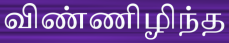
விண்ணிழிந்த